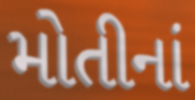
મોતીનાં